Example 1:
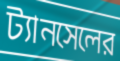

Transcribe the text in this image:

ট্যানসেলের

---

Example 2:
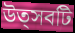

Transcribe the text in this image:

উত্সবটি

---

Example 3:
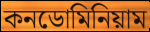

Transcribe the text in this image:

কনডোমিনিয়াম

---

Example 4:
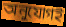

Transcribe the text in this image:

অনুযোগই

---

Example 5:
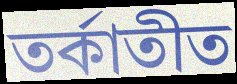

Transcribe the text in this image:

তর্কাতীত